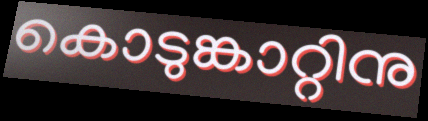
കൊടുങ്കാറ്റിനു